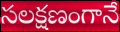
సలక్షణంగానే